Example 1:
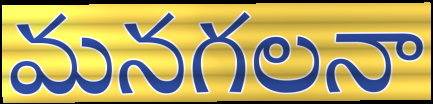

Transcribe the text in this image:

మనగలనా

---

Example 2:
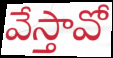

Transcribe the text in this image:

వేస్తావో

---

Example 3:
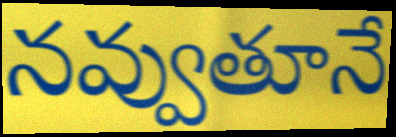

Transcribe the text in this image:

నవ్వుతూనే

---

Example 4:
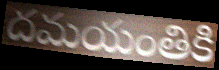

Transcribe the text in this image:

దమయంతికి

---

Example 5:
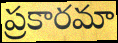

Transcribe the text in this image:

ప్రకారమా